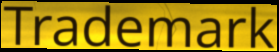
Trademark